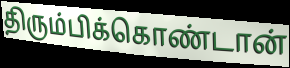
திரும்பிக்கொண்டான்